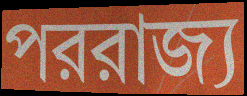
পররাজ্য